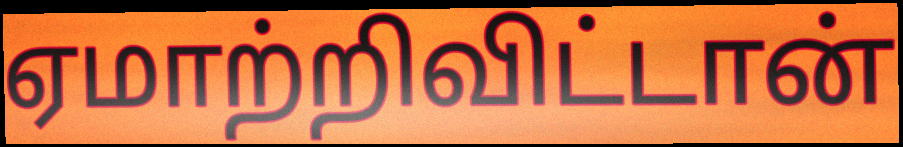
ஏமாற்றிவிட்டான்